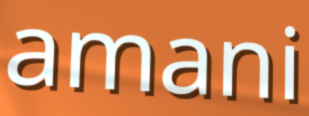
amani